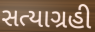
સત્યાગ્રહી